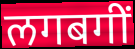
लगबगीं